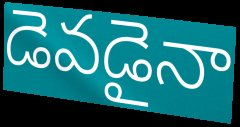
డెవడైనా